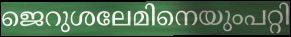
ജെറുശലേമിനെയുംപറ്റി